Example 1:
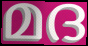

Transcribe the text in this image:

മദ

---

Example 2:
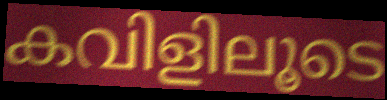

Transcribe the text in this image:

കവിളിലൂടെ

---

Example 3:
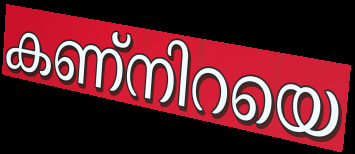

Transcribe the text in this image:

കണ്നിറയെ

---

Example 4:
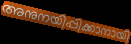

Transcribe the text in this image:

അനുനയിപ്പിക്കാനായി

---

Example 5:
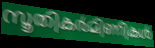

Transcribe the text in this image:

സൂതികർമിണികൾ